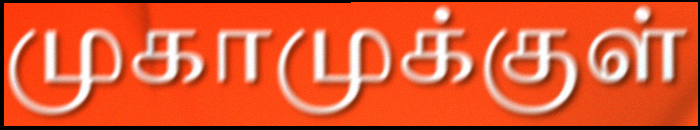
முகாமுக்குள்